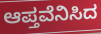
ಆಪ್ತವೆನಿಸಿದ